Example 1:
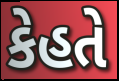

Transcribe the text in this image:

કેહતે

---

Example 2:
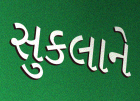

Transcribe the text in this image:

સુકલાને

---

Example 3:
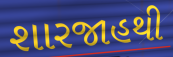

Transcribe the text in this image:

શારજાહથી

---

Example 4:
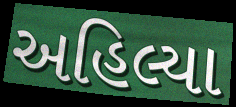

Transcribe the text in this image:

અહિલ્યા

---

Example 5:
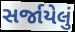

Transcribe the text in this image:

સર્જાયેલું